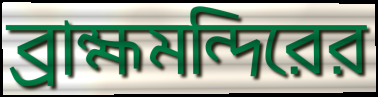
ব্রাহ্মমন্দিরের